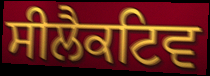
ਸੀਲੈਕਟਿਵ